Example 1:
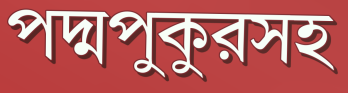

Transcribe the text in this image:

পদ্মপুকুরসহ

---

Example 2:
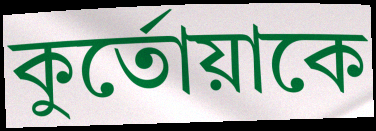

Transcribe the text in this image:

কুর্তোয়াকে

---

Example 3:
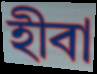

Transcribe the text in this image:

হীবা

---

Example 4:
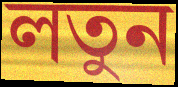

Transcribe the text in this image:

লতুন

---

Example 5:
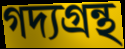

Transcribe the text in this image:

গদ্যগ্রন্থ